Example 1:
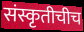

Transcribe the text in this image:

संस्कृतीचीच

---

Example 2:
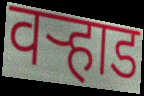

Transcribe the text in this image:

वऱ्हाड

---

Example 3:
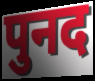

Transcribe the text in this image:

पुनद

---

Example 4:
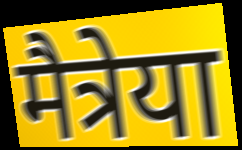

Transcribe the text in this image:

मैत्रेया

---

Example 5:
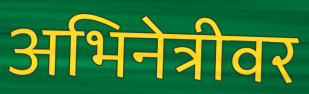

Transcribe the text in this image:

अभिनेत्रीवर